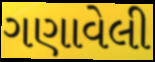
ગણાવેલી